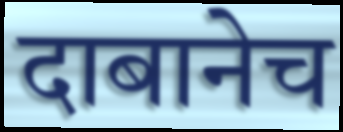
दाबानेच